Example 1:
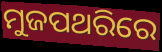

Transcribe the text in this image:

ମୁଜପଥରିରେ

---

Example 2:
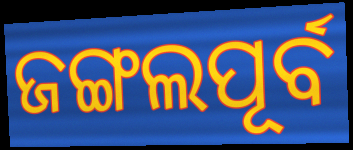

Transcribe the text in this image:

ଜଙ୍ଗଲପୂର୍ବ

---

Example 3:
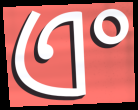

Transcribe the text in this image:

ଏଂ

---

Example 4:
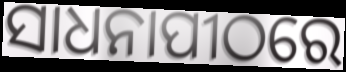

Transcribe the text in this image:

ସାଧନାପୀଠରେ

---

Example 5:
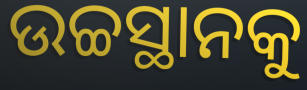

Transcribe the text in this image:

ଉଚ୍ଚସ୍ଥାନକୁ